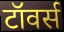
टॉवर्स